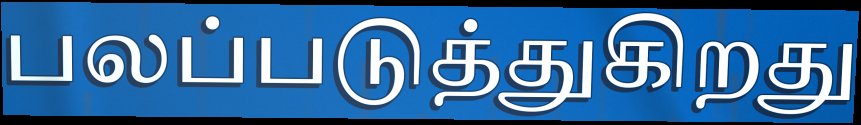
பலப்படுத்துகிறது